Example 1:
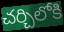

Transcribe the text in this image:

చర్చిలోకి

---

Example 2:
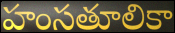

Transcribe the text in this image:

హంసతూలికా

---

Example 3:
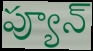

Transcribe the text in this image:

ప్యూన్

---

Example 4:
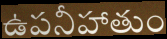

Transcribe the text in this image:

ఉపనీహాతుం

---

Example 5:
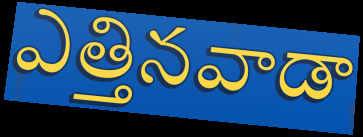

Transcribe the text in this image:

ఎత్తినవాడా